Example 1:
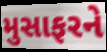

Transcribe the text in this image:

મુસાફરને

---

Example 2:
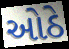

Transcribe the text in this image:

ઓઠે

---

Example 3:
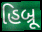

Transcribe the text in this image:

હિબ્રૂ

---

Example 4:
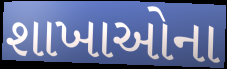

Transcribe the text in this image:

શાખાઓના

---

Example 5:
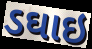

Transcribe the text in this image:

ડઘાઇ